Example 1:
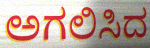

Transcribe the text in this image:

ಅಗಲಿಸಿದ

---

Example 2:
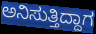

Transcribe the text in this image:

ಅನಿಸುತ್ತಿದ್ದಾಗ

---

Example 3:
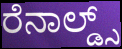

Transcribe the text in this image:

ರೆನಾಲ್ಡ್ಸ್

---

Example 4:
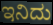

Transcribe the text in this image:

ಇನಿದು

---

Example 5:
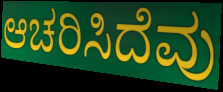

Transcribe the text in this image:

ಆಚರಿಸಿದೆವು